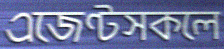
এজেণ্টসকলে